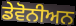
ਡੇਵੋਨੀਅਨ